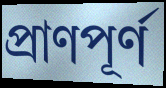
প্রাণপূর্ণ